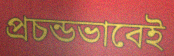
প্রচন্ডভাবেই